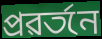
প্ৰৱৰ্তনে